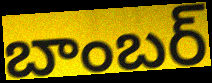
బాంబర్